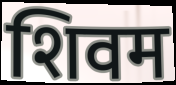
शिवम